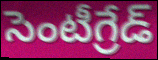
సెంటీగ్రేడ్